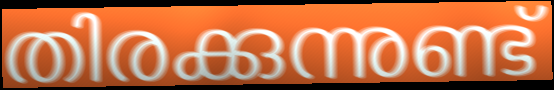
തിരക്കുന്നുണ്ട്